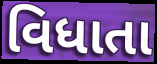
વિધાતા